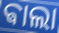
ଵାଲା